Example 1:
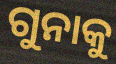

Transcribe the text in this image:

ଗୁନାକୁ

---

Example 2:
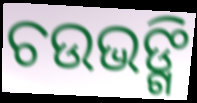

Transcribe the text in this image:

ଚଉଭଙ୍ଗି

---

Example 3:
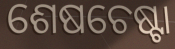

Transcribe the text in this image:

ଶେଷଚେଷ୍ଟା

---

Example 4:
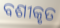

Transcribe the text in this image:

ବଶୀକୃତ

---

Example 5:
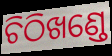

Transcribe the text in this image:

ଚିଠିଖଣ୍ଡେ